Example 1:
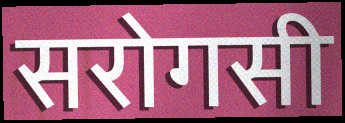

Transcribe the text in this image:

सरोगसी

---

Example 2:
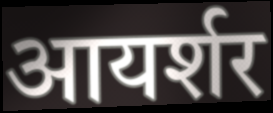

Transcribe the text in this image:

आयर्शर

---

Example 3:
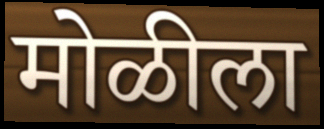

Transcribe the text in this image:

मोळीला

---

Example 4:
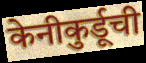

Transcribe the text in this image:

केनीकुर्डूची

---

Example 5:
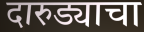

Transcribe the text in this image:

दारुड्याचा